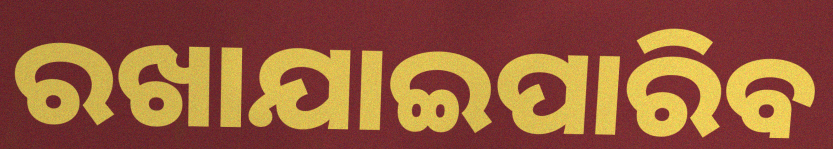
ରଖାଯାଇପାରିବ